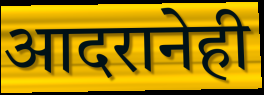
आदरानेही